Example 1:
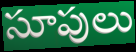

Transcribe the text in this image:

సూపులు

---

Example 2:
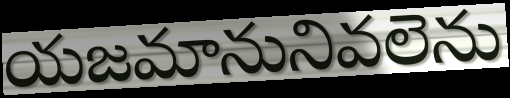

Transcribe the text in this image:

యజమానునివలెను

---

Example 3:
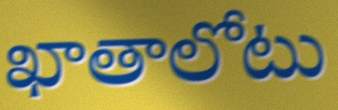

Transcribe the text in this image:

ఖాతాలోటు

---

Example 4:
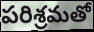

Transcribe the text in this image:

పరిశ్రమతో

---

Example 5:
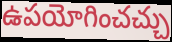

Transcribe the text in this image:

ఉపయోగించచ్చు